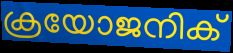
ക്രയോജനിക്